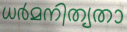
ധർമനിത്യതാ